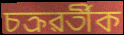
চক্ৰৱৰ্তীক